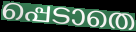
പ്പെടാതെ